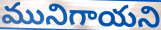
మునిగాయని